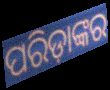
ପରିଡ଼ାଙ୍କର